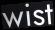
wist